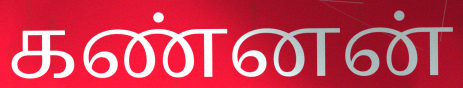
கண்னன்